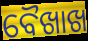
ବୈଖାଖ